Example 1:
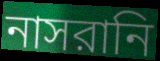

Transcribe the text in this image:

নাসরানি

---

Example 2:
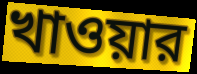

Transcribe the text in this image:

খাওয়ার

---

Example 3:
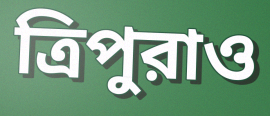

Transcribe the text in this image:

ত্রিপুরাও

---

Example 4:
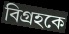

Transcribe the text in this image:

বিগ্রহকে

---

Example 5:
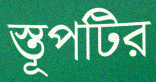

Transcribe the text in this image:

স্তূপটির